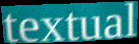
textual